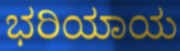
ಭರಿಯಾಯ